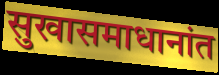
सुखासमाधानांत